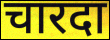
चारदा